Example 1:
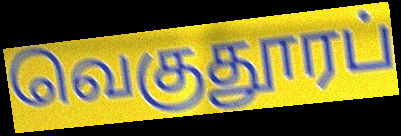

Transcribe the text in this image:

வெகுதூரப்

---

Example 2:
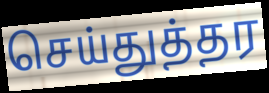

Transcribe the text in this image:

செய்துத்தர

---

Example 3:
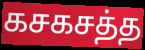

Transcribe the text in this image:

கசகசத்த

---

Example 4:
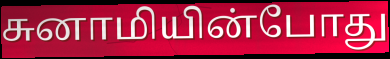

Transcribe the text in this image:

சுனாமியின்போது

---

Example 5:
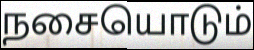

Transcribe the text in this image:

நசையொடும்